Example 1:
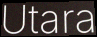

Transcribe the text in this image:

Utara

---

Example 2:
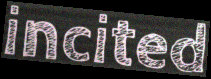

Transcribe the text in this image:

incited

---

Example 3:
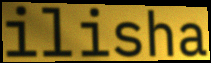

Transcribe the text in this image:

ilisha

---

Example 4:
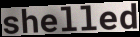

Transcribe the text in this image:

shelled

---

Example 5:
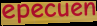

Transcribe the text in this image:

epecuen